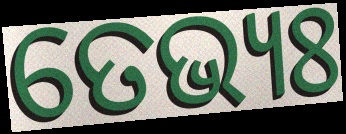
ତେଭ୍ୟଃ